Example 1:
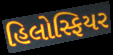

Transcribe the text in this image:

હિલોસ્ફિયર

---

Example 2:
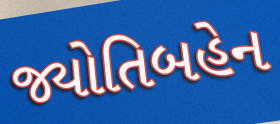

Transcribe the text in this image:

જ્યોતિબહેન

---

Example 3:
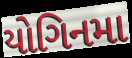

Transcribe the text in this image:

યોગિનમા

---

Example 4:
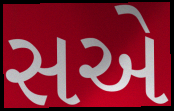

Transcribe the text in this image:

સએ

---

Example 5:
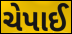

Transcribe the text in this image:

ચેપાઈ